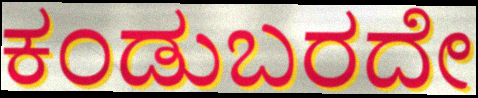
ಕಂಡುಬರದೇ